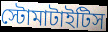
স্টোমাটাইটিস